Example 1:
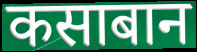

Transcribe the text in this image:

कसाबान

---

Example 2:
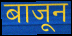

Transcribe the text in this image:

बाजून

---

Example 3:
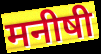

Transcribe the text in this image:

मनीषी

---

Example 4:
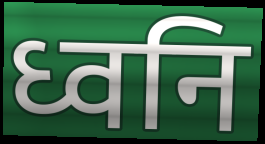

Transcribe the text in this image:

ध्वनि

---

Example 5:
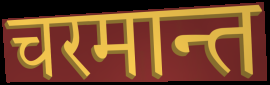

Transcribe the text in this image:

चरमान्त